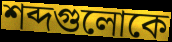
শব্দগুলোকে